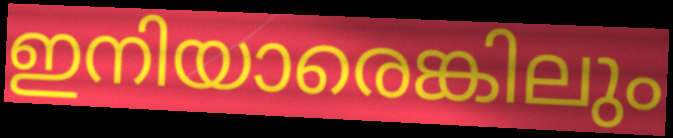
ഇനിയാരെങ്കിലും